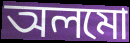
অলমো